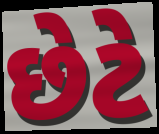
છેટે